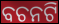
ବଚନଟି